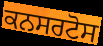
ਕਨਸਰਟੋਸ